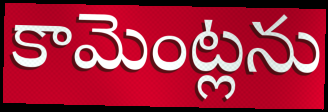
కామెంట్లను